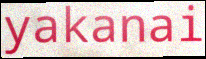
yakanai